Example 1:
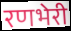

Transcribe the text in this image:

रणभेरी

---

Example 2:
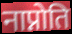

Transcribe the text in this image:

नाप्नोति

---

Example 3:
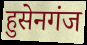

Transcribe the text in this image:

हुसेनगंज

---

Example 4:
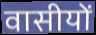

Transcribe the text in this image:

वासीयों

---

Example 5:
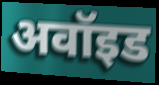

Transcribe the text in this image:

अवॉइड